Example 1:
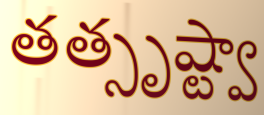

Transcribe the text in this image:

తత్సృష్ట్వా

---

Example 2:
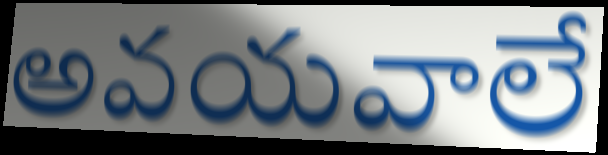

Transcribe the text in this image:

అవయవాలే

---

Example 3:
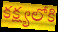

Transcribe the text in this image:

కక్ష్యలోకి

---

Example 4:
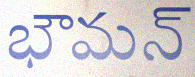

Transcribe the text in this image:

భౌమన్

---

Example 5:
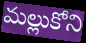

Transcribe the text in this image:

మల్లుకోని